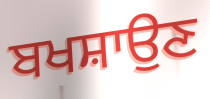
ਬਖਸ਼ਾਉਣ